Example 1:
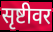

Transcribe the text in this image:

सृष्टीवर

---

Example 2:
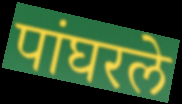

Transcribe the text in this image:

पांघरले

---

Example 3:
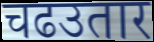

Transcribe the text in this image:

चढउतार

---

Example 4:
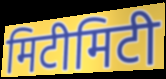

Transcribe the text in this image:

मिटीमिटी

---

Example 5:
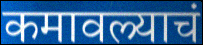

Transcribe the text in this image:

कमावल्याचं